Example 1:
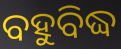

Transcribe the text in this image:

ବହୁବିଦ୍ଧ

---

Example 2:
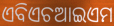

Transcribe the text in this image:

ଏବିଏଚଆଇଏମ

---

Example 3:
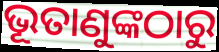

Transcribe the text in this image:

ଭୂତାଣୁଙ୍କଠାରୁ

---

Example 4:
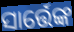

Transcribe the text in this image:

ସାର୍ତ୍ତେଙ୍କ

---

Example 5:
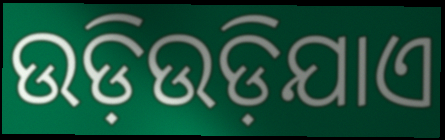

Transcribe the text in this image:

ଉଡ଼ିଉଡ଼ିଯାଏ